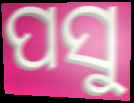
ପସୁ